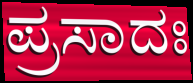
ಪ್ರಸಾದಃ